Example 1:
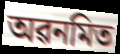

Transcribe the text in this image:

অৱনমিত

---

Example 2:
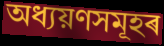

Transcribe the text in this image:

অধ্যয়ণসমূহৰ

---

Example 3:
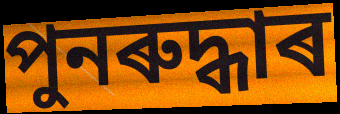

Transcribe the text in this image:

পুনৰুদ্ধাৰ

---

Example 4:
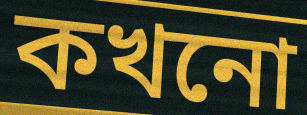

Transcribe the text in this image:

কখনো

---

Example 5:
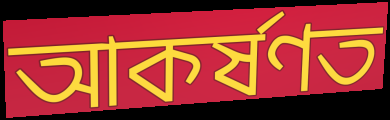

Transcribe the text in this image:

আকৰ্ষণত